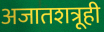
अजातशत्रूही